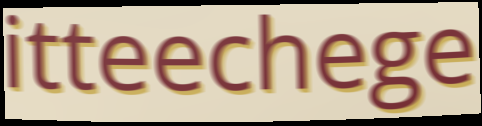
itteechege